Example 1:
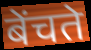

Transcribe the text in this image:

बेंचते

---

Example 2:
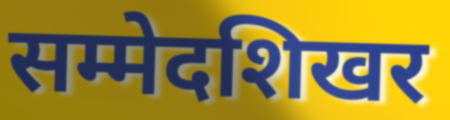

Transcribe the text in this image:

सम्मेदशिखर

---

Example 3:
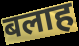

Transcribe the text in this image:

बलाह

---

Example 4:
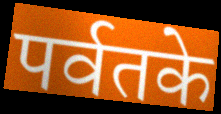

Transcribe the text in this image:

पर्वतके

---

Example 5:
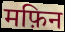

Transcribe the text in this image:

मफ़िन